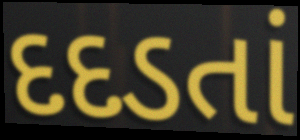
દદડતાં